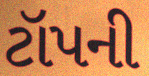
ટૉપની